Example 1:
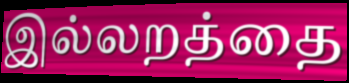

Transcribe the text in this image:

இல்லறத்தை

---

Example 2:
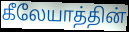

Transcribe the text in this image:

கீலேயாத்தின்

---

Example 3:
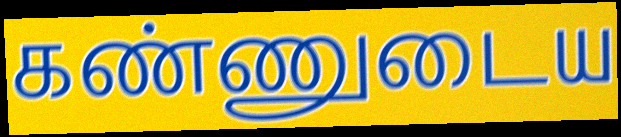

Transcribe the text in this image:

கண்ணுடைய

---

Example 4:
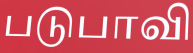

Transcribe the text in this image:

படுபாவி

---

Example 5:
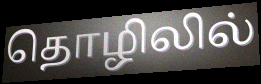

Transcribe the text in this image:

தொழிலில்